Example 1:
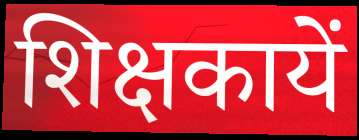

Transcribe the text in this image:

शिक्षकायें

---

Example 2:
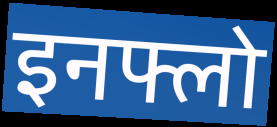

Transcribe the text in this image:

इनफ्लो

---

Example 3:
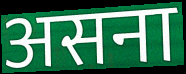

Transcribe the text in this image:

असना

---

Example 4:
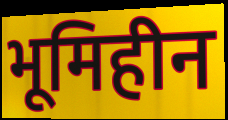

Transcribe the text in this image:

भूमिहीन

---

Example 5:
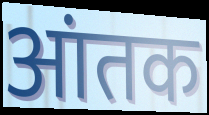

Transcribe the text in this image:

आंतक